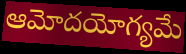
ఆమోదయోగ్యమే